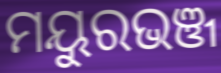
ମୟୁରଭଞ୍ଜ